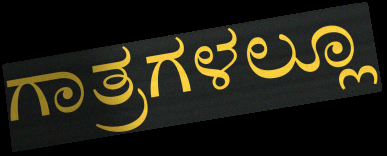
ಗಾತ್ರಗಳಲ್ಲೂ